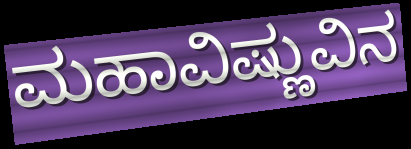
ಮಹಾವಿಷ್ಣುವಿನ